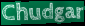
Chudgar